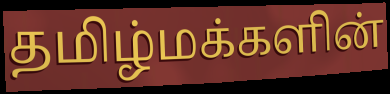
தமிழ்மக்களின்